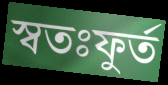
স্বতঃফুর্ত